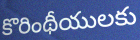
కొరింథీయులకు